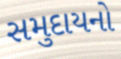
સમુદાયનો